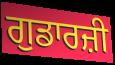
ਗੁਡਾਰਜ਼ੀ